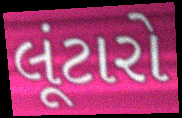
લૂંટારો